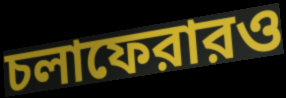
চলাফেরারও